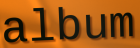
album